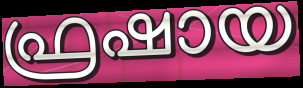
ഫ്രഷായ